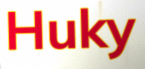
Huky